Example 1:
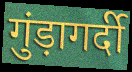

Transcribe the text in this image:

गुंड़ागर्दी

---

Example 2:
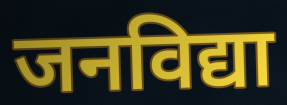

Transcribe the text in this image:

जनविद्या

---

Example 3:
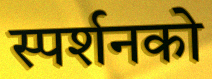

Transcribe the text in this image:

स्पर्शनको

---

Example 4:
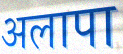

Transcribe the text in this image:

अलापा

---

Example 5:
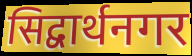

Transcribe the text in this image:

सिद्वार्थनगर